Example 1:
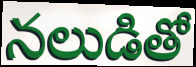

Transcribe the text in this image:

నలుడితో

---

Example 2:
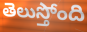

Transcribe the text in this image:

తెలుస్తోంది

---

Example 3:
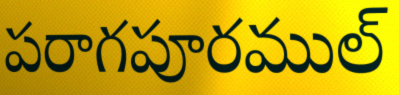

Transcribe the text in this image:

పరాగపూరముల్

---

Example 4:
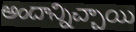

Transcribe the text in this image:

అందాన్నిచ్చాయి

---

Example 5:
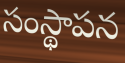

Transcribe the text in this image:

సంస్థాపన